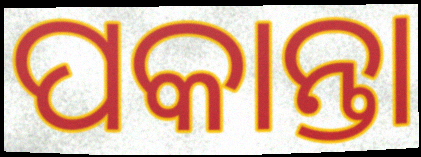
ପକାନ୍ତା